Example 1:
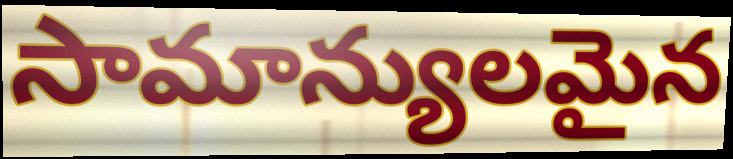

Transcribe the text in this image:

సామాన్యులమైన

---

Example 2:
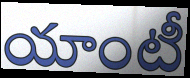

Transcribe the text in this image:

యాంటీ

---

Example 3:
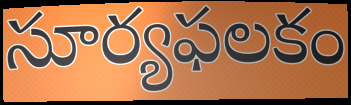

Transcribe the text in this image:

సూర్యఫలకం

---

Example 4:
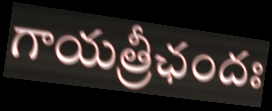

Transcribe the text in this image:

గాయత్రీఛందః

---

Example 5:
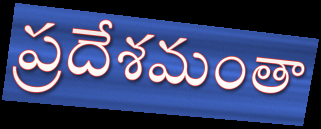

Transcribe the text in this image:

ప్రదేశమంతా